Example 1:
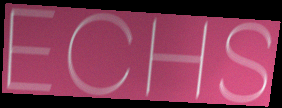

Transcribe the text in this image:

ECHS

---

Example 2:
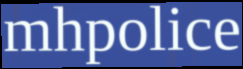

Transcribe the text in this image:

mhpolice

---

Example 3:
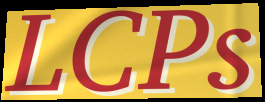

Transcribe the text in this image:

LCPs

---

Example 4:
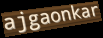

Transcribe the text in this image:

ajgaonkar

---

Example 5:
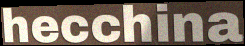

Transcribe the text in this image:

hecchina